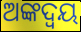
ଅଙ୍କଦ୍ବୟ